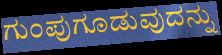
ಗುಂಪುಗೂಡುವುದನ್ನು